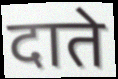
दाते